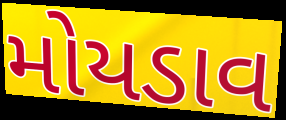
મોયડાવ